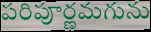
పరిపూర్ణమగును